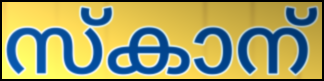
സ്കാന്